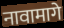
नावामागे